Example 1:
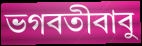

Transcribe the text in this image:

ভগবতীবাবু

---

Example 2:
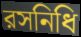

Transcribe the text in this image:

রসনিধি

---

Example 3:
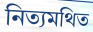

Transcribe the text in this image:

নিত্যমথিত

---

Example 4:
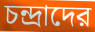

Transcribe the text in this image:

চন্দ্রাদের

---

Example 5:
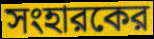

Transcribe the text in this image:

সংহারকের